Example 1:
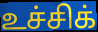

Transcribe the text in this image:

உச்சிக்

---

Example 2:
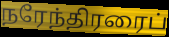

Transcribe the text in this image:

நரேந்திரரைப்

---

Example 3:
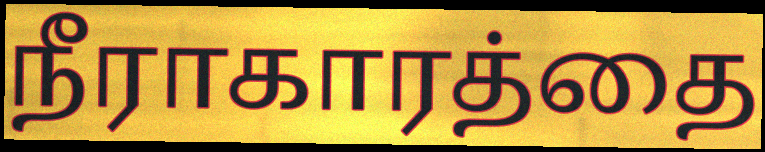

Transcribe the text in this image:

நீராகாரத்தை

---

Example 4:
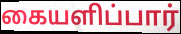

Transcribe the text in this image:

கையளிப்பார்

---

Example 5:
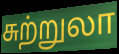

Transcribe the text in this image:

சுற்றுலா